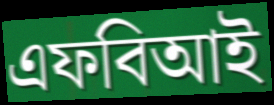
এফবিআই